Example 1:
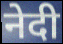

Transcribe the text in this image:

नेदी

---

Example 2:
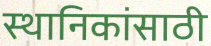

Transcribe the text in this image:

स्थानिकांसाठी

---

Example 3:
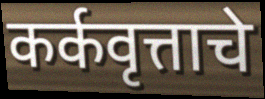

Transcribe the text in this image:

कर्कवृत्ताचे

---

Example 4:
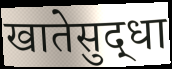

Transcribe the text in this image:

खातेसुद्धा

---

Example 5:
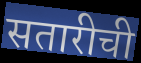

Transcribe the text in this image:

सतारीची